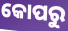
କୋପରୁ